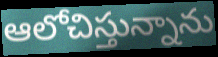
ఆలోచిస్తున్నాను